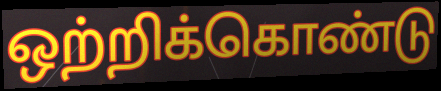
ஒற்றிக்கொண்டு